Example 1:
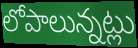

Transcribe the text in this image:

లోపాలున్నట్లు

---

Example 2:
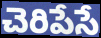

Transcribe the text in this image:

చెరిపేసే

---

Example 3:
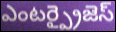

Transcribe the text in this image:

ఎంటర్ప్రైజెస్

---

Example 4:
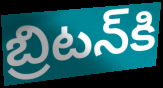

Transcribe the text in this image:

బ్రిటన్‌కి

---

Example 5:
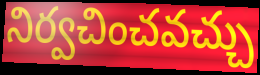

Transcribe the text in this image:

నిర్వచించవచ్చు